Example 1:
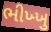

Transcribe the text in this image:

ભીખ્ખુ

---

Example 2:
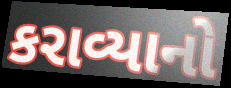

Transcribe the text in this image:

કરાવ્યાનો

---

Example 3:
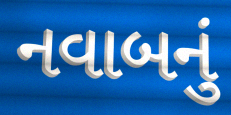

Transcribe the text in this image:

નવાબનું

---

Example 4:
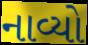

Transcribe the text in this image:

નાવ્યો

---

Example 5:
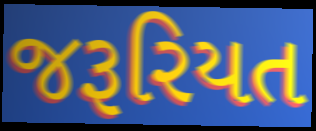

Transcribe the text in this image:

જરૂરિયત